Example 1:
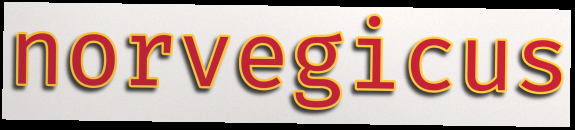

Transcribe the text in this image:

norvegicus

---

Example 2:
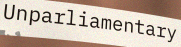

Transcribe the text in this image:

Unparliamentary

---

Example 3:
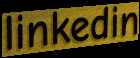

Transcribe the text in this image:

linkedin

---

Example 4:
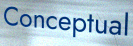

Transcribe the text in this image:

Conceptual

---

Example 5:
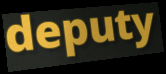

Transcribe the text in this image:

deputy